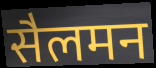
सैलमन